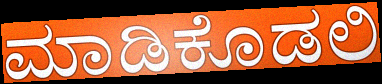
ಮಾಡಿಕೊಡಲಿ